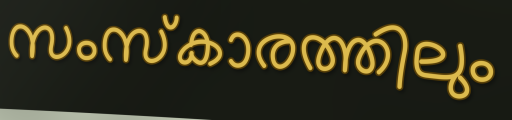
സംസ്കാരത്തിലും